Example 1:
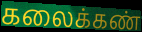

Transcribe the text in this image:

கலைக்கண்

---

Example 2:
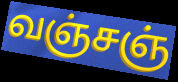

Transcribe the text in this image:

வஞ்சஞ்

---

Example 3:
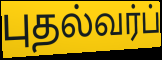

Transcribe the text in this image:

புதல்வர்ப்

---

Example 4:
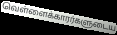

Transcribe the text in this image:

வெள்ளைக்காரர்களுடைய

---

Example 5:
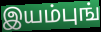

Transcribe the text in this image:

இயம்புங்